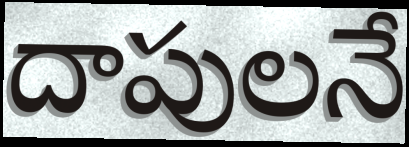
దాపులనే